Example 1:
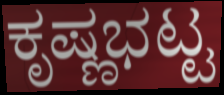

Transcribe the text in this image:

ಕೃಷ್ಣಭಟ್ಟ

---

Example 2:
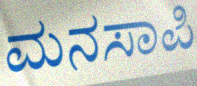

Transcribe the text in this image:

ಮನಸಾಪಿ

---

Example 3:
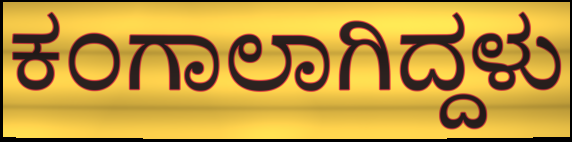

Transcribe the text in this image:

ಕಂಗಾಲಾಗಿದ್ದಳು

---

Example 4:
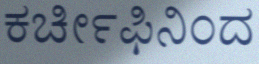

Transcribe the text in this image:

ಕರ್ಚೀಫಿನಿಂದ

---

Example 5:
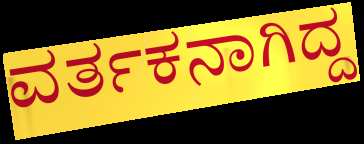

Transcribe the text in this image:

ವರ್ತಕನಾಗಿದ್ದ